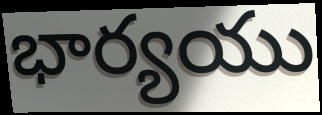
భార్యయు